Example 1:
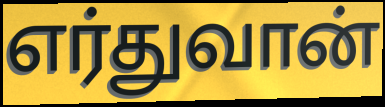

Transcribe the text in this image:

எர்துவான்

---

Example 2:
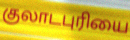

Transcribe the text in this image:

குலாடபுரியை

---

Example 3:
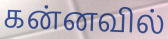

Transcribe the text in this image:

கன்னவில்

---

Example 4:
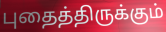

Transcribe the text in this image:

புதைத்திருக்கும்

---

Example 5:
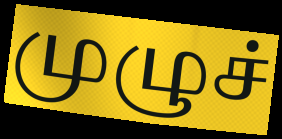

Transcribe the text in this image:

முழுச்